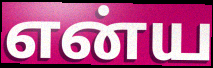
என்ய